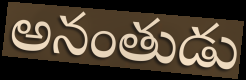
అనంతుడు